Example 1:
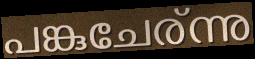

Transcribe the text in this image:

പങ്കുചേര്ന്നു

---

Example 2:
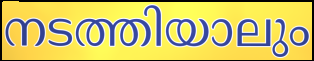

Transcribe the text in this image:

നടത്തിയാലും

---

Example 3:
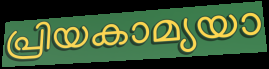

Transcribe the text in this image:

പ്രിയകാമ്യയാ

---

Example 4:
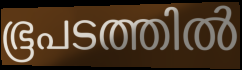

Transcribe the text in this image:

ഭൂപടത്തിൽ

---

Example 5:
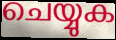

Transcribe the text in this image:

ചെയ്യുക